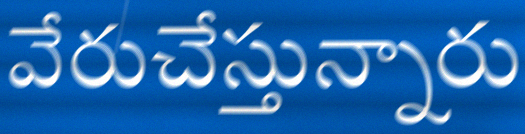
వేరుచేస్తున్నారు